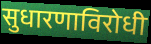
सुधारणाविरोधी